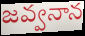
జవ్వనాన